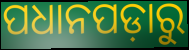
ପଧାନପଡ଼ାରୁ